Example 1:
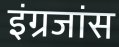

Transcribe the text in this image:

इंग्रजांस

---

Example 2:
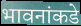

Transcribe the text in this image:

भावनांकडे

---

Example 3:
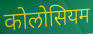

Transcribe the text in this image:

कोलोसियम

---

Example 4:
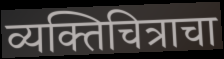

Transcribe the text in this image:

व्यक्तिचित्राचा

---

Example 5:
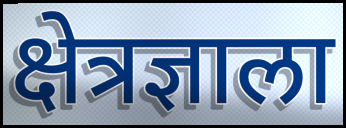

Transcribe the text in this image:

क्षेत्रज्ञाला